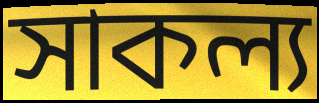
সাকল্য